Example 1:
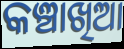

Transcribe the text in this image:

କଞ୍ଚାଖିଆ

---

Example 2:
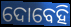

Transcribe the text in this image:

ଦୋବେହି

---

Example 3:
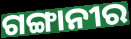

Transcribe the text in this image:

ଗଙ୍ଗାନୀର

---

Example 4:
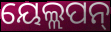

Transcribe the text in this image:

ୟେଲ୍ଲପନ୍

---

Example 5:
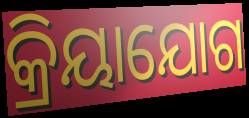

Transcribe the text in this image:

କ୍ରିୟାଯୋଗ